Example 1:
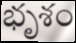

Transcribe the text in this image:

భృశం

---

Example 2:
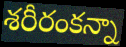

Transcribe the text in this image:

శరీరంకన్నా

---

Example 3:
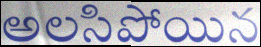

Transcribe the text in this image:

అలసిపోయిన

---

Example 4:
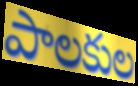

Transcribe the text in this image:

పాలకుల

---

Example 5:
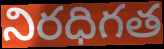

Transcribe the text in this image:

నిరధిగత